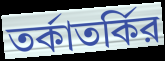
তর্কাতর্কির